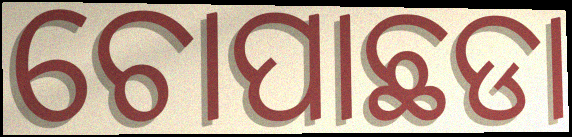
ଚୋପାଛଡା